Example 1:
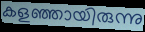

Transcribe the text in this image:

കളഞ്ഞായിരുന്നു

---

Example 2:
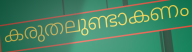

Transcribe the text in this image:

കരുതലുണ്ടാകണം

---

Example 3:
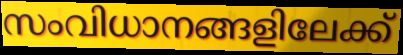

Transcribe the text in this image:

സംവിധാനങ്ങളിലേക്ക്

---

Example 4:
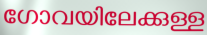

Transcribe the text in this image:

ഗോവയിലേക്കുള്ള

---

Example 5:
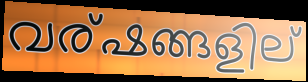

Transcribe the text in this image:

വര്ഷങ്ങളില്